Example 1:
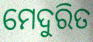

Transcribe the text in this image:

ମେଦୁରିତ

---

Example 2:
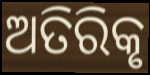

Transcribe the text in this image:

ଅତିରିକୃ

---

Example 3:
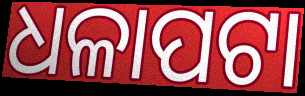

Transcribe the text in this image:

ଧଳାପଟା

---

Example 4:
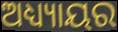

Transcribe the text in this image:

ଅଧ୍ୟ୍ୟାୟର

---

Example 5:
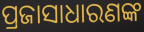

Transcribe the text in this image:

ପ୍ରଜାସାଧାରଣଙ୍କ